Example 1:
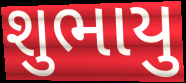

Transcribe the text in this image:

શુભાયુ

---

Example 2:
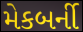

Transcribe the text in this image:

મેકબર્ની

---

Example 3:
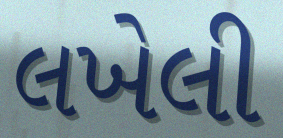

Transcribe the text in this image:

લખેલી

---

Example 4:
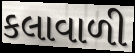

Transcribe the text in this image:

કલાવાળી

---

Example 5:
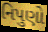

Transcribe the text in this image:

નિપુણો